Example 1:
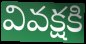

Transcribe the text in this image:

వివక్షకి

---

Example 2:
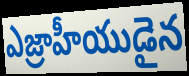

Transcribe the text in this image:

ఎజ్రాహీయుడైన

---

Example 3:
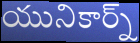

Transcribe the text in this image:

యునికార్న్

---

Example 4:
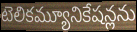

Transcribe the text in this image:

టెలికమ్యూనికేషన్లను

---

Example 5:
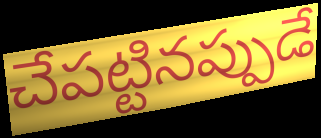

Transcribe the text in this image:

చేపట్టినప్పుడే